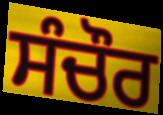
ਸੰਚੌਰ